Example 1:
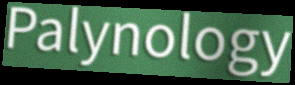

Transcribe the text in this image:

Palynology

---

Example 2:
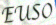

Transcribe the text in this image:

EUSO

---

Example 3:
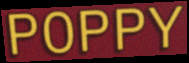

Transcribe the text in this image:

POPPY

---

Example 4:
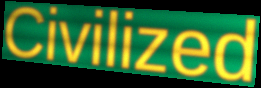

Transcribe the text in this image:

Civilized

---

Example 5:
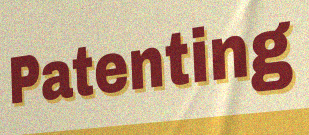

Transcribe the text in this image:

Patenting